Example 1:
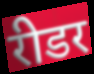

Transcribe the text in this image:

रीडर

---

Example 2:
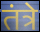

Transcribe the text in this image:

तंत्रे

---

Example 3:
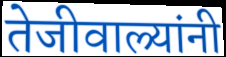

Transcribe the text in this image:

तेजीवाल्यांनी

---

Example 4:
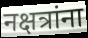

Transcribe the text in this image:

नक्षत्रांना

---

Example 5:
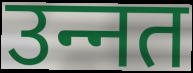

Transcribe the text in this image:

उन्‍नत